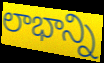
లాభాన్ని